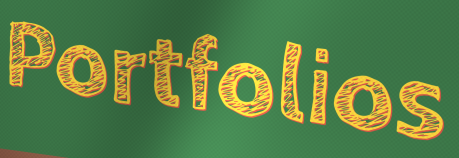
Portfolios